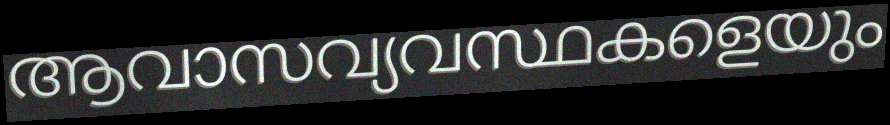
ആവാസവ്യവസ്ഥകളെയും